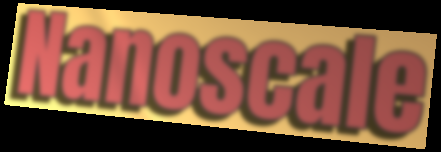
Nanoscale